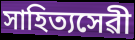
সাহিত্যসেৱী